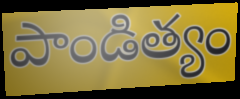
పాండిత్యం